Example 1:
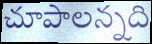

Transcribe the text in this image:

చూపాలన్నది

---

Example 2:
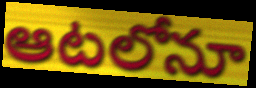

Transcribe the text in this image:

ఆటలోనూ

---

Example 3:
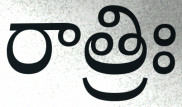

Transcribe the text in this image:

రాత్రిః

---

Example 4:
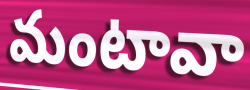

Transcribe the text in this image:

మంటావా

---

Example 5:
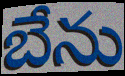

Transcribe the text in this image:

బేను